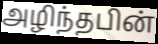
அழிந்தபின்